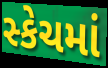
સ્કેચમાં